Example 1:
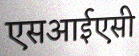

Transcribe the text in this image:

एसआईएसी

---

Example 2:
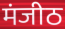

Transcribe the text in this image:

मंजीठ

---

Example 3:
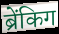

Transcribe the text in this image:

ब्रेंकिग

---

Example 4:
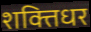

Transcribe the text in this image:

शक्तिधर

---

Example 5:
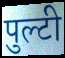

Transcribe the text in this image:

पुल्टी